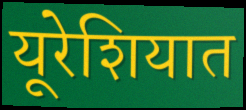
यूरेशियात